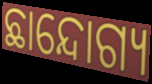
ଛାନ୍ଦୋଗ୍ୟ